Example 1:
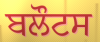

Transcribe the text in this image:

ਬਲੌਟਸ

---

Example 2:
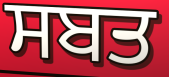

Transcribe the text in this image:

ਸਬਤ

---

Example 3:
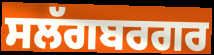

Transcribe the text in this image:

ਸਲੱਗਬਰਗਰ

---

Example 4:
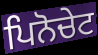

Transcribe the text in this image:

ਪਿਨੋਚੇਟ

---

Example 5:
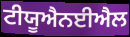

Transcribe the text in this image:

ਟੀਯੂਐਨਈਐਲ